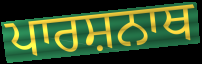
ਪਾਰਸ਼ਨਾਥ